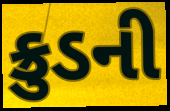
ક્રુડની